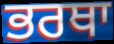
ਭਰਥਾ